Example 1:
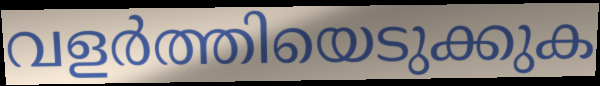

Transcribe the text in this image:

വളർത്തിയെടുക്കുക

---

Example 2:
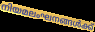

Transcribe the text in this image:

നിയമലംഘനങ്ങൾക്ക്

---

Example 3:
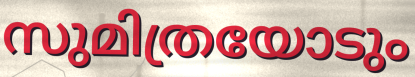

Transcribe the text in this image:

സുമിത്രയോടും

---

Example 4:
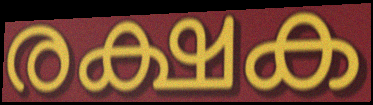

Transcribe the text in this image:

രക്ഷക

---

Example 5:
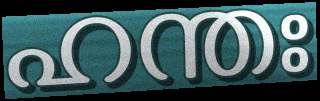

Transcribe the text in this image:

ഹന്തഃ